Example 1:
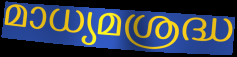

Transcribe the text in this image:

മാധ്യമശ്രദ്ധ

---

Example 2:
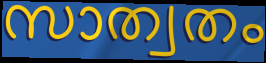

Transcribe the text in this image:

സാത്വതം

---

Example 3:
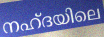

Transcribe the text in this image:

നഹ്ദയിലെ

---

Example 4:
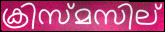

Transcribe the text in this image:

ക്രിസ്മസില്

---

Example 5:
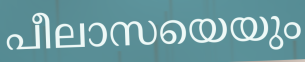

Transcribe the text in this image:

പീലാസയെയും